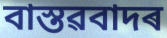
বাস্তৱবাদৰ